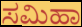
ಸಮಿಹಾ